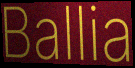
Ballia